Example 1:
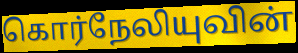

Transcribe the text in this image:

கொர்நேலியுவின்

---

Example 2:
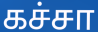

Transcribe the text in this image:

கச்சா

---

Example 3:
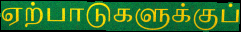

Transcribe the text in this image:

ஏற்பாடுகளுக்குப்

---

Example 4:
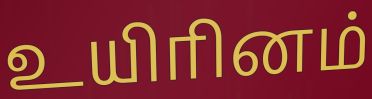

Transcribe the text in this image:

உயிரினம்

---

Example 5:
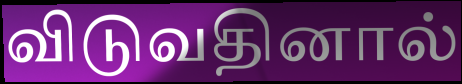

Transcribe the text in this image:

விடுவதினால்